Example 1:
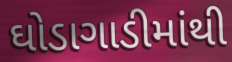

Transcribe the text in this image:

ઘોડાગાડીમાંથી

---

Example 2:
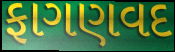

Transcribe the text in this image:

ફાગણવદ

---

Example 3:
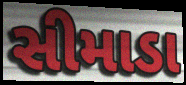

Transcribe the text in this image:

સીમાડા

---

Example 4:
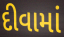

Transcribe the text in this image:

દીવામાં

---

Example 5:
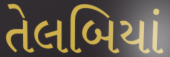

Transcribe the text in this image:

તેલબિયાં